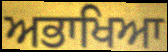
ਅਭਾਖਿਆ